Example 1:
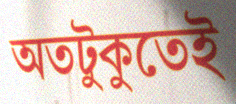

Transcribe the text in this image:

অতটুকুতেই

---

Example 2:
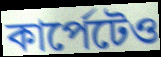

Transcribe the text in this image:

কার্পেটেও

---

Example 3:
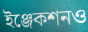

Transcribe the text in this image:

ইঞ্জেকশনও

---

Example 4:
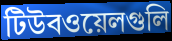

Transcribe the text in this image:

টিউবওয়েলগুলি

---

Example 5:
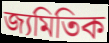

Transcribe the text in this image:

জ্যমিতিক